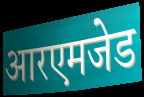
आरएमजेड